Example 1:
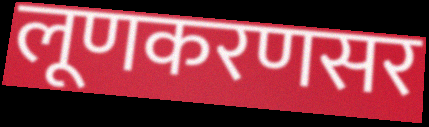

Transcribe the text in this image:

लूणकरणसर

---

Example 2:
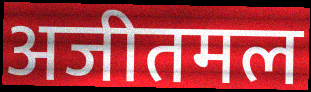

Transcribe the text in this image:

अजीतमल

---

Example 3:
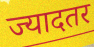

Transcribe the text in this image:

ज्यादतर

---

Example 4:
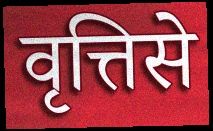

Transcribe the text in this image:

वृत्तिसे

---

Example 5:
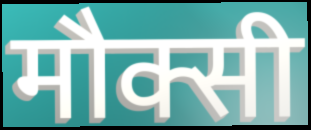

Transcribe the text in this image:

मौक्सी